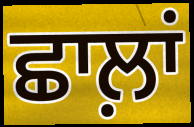
ਛਾਲ਼ਾਂ